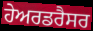
ਹੇਅਰਡਰੈਸਰ